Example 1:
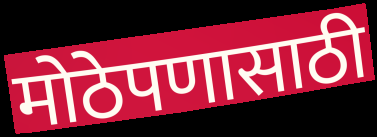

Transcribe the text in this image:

मोठेपणासाठी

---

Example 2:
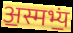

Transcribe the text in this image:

अ॒स्मभ्यं॒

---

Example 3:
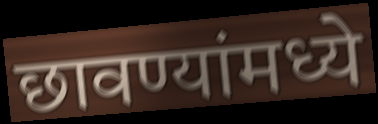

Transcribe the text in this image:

छावण्यांमध्ये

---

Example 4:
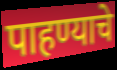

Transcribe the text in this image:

पाहण्याचे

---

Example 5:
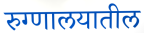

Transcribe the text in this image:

रुग्णालयातील